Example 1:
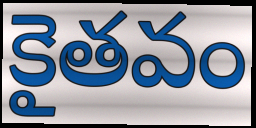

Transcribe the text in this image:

కైతవం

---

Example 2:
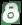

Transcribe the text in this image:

ఠి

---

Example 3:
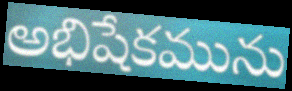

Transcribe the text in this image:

అభిషేకమును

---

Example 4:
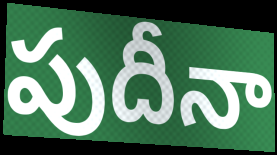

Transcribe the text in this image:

పుదీనా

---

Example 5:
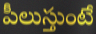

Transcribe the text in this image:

పీలుస్తుంటే